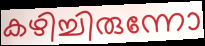
കഴിച്ചിരുന്നോ